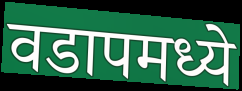
वडापमध्ये